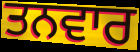
ਤਨਵਾਰ